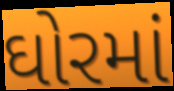
ઘોરમાં